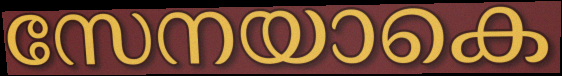
സേനയാകെ